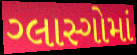
ગ્લાસ્ગોમાં